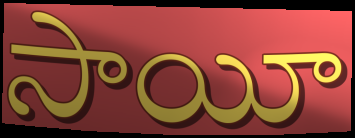
సాయీ